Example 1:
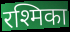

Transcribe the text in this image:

रश्मिका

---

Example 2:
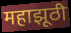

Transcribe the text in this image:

महाझूठी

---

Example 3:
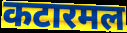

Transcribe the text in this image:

कटारमल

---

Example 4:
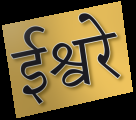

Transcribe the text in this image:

ईश्वरे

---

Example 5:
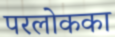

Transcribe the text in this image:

परलोकका